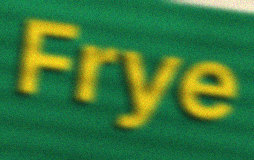
Frye